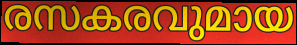
രസകരവുമായ